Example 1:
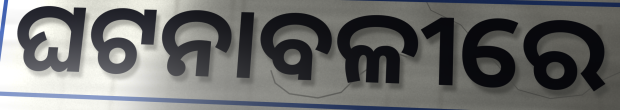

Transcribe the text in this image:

ଘଟନାବଳୀରେ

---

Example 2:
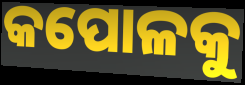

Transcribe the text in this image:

କପୋଳକୁ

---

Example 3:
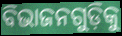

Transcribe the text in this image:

ବିଭାଜନଗୁଡ଼ିକୁ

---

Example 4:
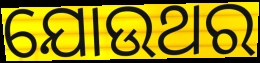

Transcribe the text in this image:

ଯୋଉଥର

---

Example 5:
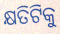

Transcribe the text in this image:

କ୍ଷତିଟିକୁ